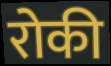
रोकी